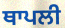
ਥਾਪਲੀ